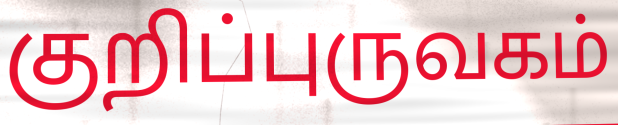
குறிப்புருவகம்